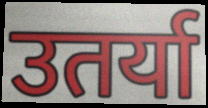
उतर्या